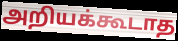
அறியக்கூடாத